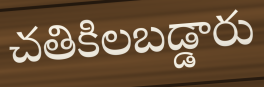
చతికిలబడ్డారు